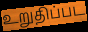
உறுதிப்பட